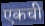
एकची